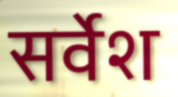
सर्वेश